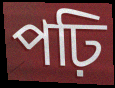
পঢ়ি